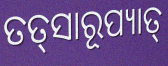
ତତ୍‌ସାରୂପ୍ୟାତ୍